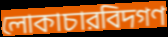
লোকাচারবিদগণ